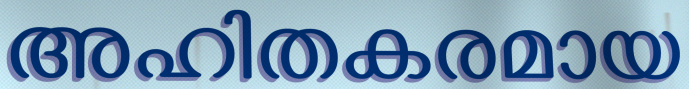
അഹിതകരമായ